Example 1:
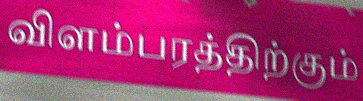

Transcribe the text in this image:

விளம்பரத்திற்கும்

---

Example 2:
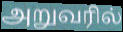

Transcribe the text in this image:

அறுவரில்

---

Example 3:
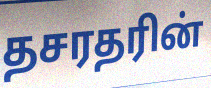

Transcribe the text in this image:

தசரதரின்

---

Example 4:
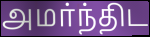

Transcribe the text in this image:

அமர்ந்திட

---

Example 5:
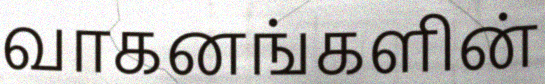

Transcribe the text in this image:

வாகனங்களின்